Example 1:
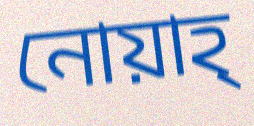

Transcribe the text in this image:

নোয়াহ্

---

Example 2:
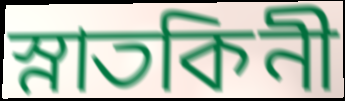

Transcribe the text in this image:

স্নাতকিনী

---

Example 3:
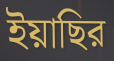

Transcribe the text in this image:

ইয়াছির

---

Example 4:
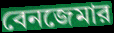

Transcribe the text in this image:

বেনজেমার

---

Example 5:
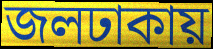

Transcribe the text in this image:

জলঢাকায়